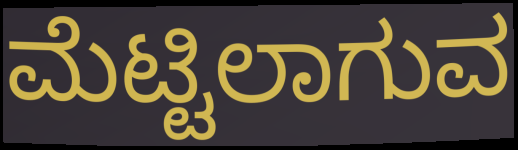
ಮೆಟ್ಟಿಲಾಗುವ